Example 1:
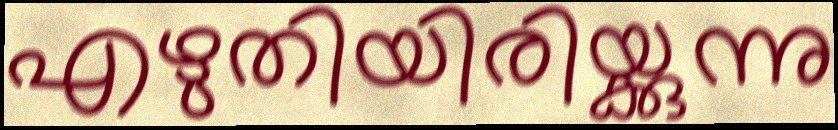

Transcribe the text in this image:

എഴുതിയിരിയ്ക്കുന്നു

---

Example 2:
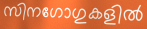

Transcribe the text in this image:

സിനഗോഗുകളിൽ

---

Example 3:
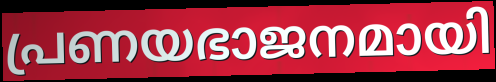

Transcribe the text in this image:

പ്രണയഭാജനമായി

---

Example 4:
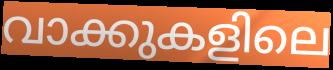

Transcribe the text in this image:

വാക്കുകളിലെ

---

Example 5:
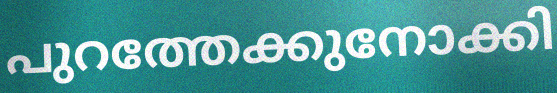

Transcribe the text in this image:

പുറത്തേക്കുനോക്കി